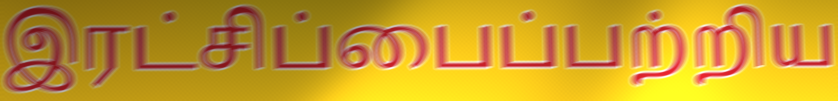
இரட்சிப்பைப்பற்றிய